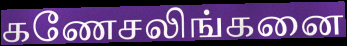
கணேசலிங்கனை